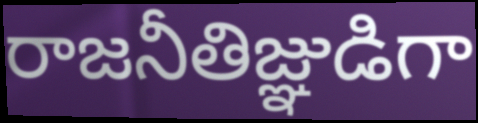
రాజనీతిజ్ఞుడిగా